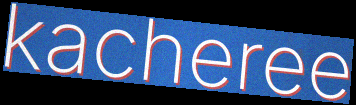
kacheree